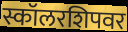
स्कॉलरशिपवर